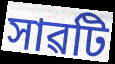
সাৱটি